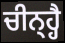
ਚੀਨ੍ਹ੍ਹੈ